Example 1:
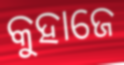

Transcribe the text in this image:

କୁହାଜେ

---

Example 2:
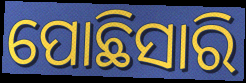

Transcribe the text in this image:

ପୋଛିସାରି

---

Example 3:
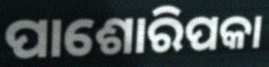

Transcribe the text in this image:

ପାଶୋରିପକା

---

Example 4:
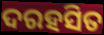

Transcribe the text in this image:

ଦରହସିତ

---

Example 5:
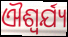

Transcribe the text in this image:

ଐଶ୍ଵର୍ଯ୍ୟ